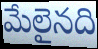
మేలైనది